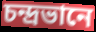
চন্দ্ৰভানে